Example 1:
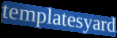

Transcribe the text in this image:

templatesyard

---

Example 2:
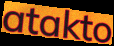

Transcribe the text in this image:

atakto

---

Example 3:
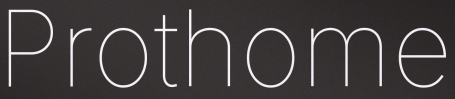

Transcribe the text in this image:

Prothome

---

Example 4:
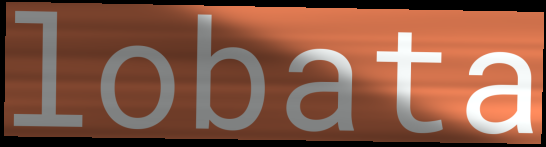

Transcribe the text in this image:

lobata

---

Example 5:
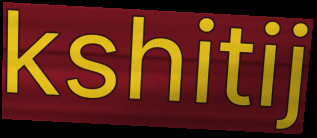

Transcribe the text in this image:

kshitij